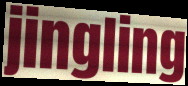
jingling